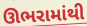
ઊભરામાંથી